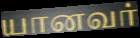
யானவர்